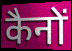
कैनों